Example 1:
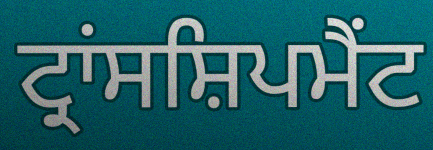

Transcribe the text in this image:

ਟ੍ਰਾਂਸਸ਼ਿਪਮੈਂਟ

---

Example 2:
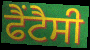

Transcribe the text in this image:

ਫੈਂਟੈਸੀ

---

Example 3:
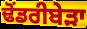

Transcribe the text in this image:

ਢੋਂਡਰੀਬੇੜਾ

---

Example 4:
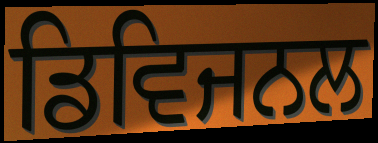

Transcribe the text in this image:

ਡਿਵਿਜਨਲ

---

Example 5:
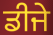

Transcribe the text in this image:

ਡੀਜੇ